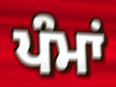
ਪੰਮਾਂ